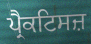
ਪ੍ਰੈਕਟਿਸਜ਼